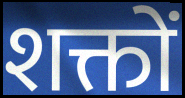
शक्तों